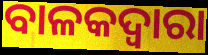
ବାଳକଦ୍ୱାରା